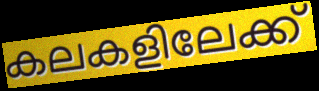
കലകളിലേക്ക്